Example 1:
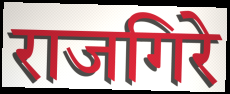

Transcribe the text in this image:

राजगिरे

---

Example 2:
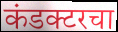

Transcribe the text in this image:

कंडक्टरचा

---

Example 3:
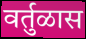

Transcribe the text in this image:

वर्तुळास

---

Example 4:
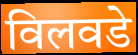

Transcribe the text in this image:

विलवडे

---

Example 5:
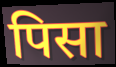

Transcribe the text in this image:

पिसा